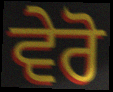
ਵੇਰੋ